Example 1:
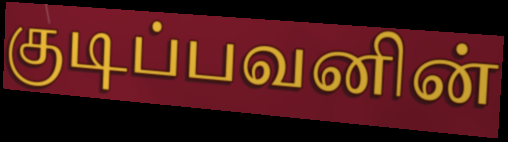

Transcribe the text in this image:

குடிப்பவனின்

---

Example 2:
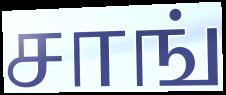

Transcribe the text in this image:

சாங்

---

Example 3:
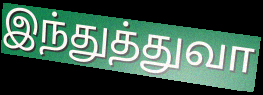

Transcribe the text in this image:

இந்துத்துவா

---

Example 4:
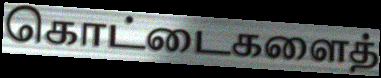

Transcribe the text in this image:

கொட்டைகளைத்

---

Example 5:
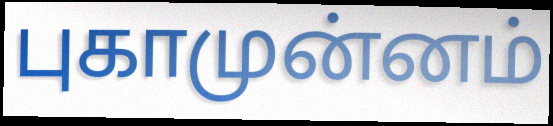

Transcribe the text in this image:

புகாமுன்னம்